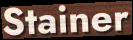
Stainer